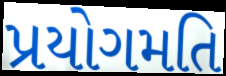
પ્રયોગમતિ